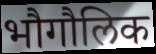
भौगौलिक